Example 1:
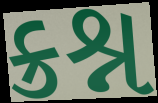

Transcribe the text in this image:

ક્રશ્ન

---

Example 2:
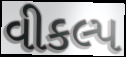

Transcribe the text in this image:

વીકલ્પ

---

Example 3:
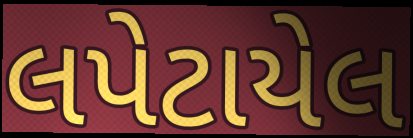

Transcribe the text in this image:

લપેટાયેલ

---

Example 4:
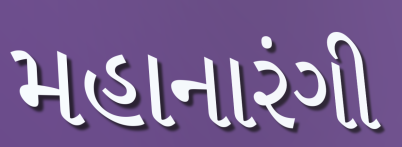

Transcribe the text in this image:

મહાનારંગી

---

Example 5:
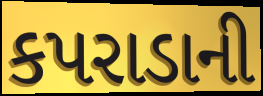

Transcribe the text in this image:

કપરાડાની